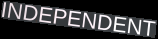
INDEPENDENT